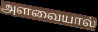
அளவையால்